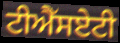
ਟੀਐੱਸਏਟੀ